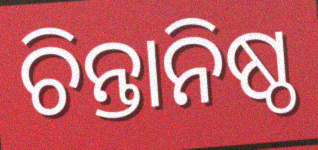
ଚିନ୍ତାନିଷ୍ଠ